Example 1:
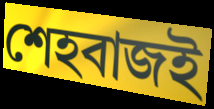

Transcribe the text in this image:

শেহবাজই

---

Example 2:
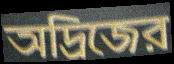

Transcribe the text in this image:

অদ্রিজের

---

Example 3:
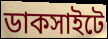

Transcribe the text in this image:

ডাকসাইটে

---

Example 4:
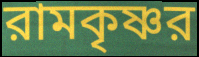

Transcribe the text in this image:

রামকৃষ্ণর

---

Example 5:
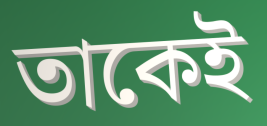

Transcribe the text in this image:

তাকেই